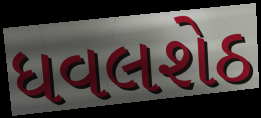
ધવલશેઠ